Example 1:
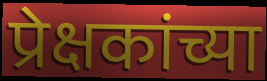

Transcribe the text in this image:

प्रेक्षकांच्या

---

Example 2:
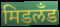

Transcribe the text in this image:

मिडलँड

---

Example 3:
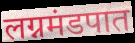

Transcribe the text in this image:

लग्नमंडपात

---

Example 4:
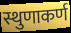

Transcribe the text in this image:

स्थुणाकर्ण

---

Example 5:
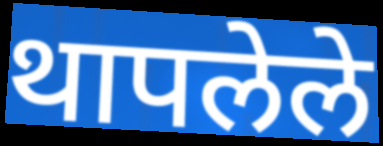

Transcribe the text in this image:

थापलेले